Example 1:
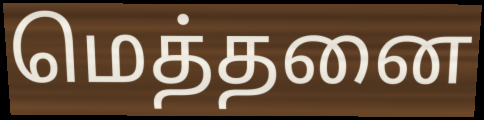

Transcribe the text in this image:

மெத்தனை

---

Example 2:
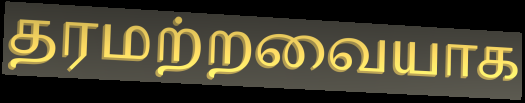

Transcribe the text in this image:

தரமற்றவையாக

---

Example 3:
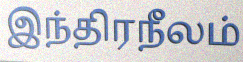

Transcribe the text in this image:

இந்திரநீலம்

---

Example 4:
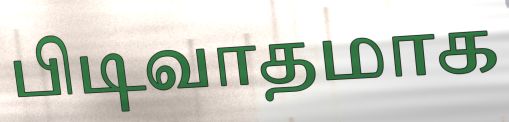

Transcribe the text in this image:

பிடிவாதமாக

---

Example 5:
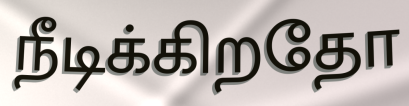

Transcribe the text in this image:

நீடிக்கிறதோ